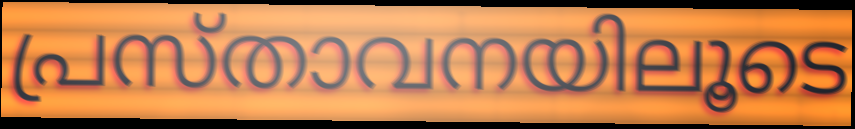
പ്രസ്താവനയിലൂടെ